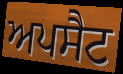
ਅਪਸੈਟ